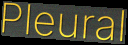
Pleural